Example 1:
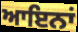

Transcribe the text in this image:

ਆਇਨਾਂ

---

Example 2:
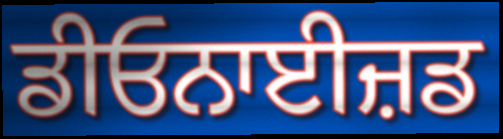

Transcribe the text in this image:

ਡੀਓਨਾਈਜ਼ਡ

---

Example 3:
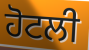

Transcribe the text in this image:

ਹੋਟਲੀ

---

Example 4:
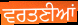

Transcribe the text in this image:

ਵਰਤਣੀਆਂ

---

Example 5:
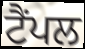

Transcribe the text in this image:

ਟੈਂਪਲ